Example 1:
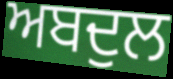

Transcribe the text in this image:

ਅਬਦੁਲ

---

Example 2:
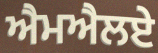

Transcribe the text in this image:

ਐਮਐਲਏ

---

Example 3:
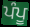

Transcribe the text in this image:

ਪੰਪੂ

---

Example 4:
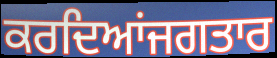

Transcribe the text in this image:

ਕਰਦਿਆਂਜਗਤਾਰ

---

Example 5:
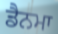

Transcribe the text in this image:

ਡੈਨਮਾ